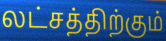
லட்சத்திற்கும்